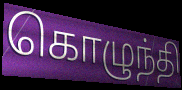
கொழுந்தி